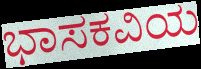
ಭಾಸಕವಿಯ